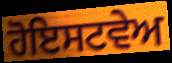
ਹੋਇਸਟਵੇਅ